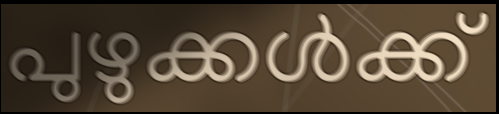
പുഴുക്കൾക്ക്